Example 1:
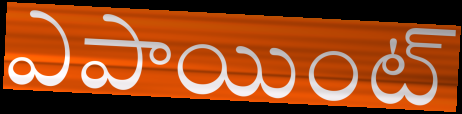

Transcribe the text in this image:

ఎపాయింట్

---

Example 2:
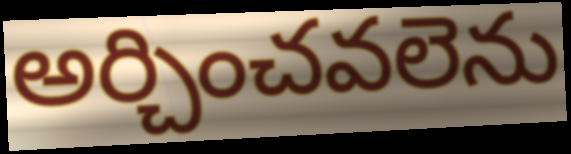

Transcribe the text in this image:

అర్చించవలెను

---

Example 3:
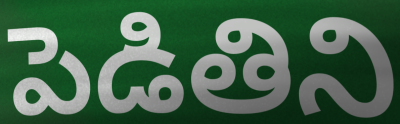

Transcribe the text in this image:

పెడితిని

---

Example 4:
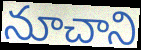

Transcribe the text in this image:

నూచాని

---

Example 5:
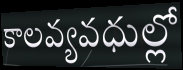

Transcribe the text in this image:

కాలవ్యవధుల్లో